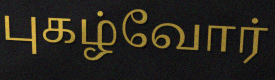
புகழ்வோர்